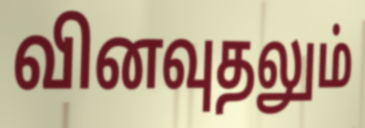
வினவுதலும்